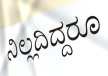
ನಿಲ್ಲದಿದ್ದರೂ